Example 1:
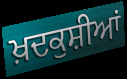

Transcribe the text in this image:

ਖ਼ਦਕੁਸ਼ੀਆਂ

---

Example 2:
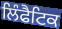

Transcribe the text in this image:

ਲਿੰਫੈਟਿਕ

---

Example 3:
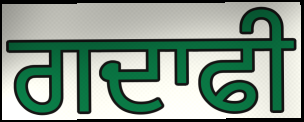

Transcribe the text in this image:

ਗਦਾਫੀ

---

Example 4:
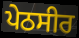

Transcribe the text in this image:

ਪੇਠਸੀਰ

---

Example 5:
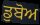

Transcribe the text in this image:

ਡੁਬੋਅ